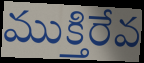
ముక్తిరేవ